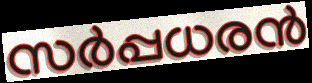
സർപ്പധരൻ